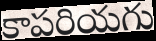
కాపరియగు